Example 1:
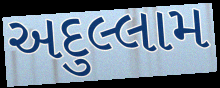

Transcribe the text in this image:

અદુલ્લામ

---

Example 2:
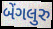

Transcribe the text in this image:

બેંગલુરુ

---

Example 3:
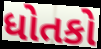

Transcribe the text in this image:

ધોતકો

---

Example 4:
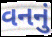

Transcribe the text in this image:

વનનું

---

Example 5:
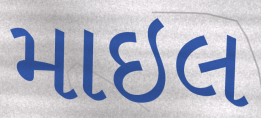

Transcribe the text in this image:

માઇલ